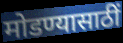
मोडण्यासाठीं